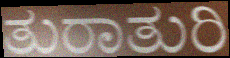
ತುರಾತುರಿ